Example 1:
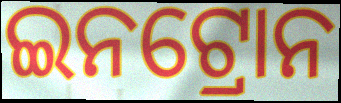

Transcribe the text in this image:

ଇନଟ୍ରୋନ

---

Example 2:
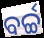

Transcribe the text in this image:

ବର୍ଚ୍ଚ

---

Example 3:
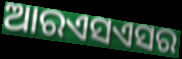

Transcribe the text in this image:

ଆରଏସଏସର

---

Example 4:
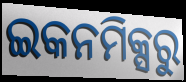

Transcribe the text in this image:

ଇକନମିକ୍ସରୁ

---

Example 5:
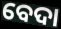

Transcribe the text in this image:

ବେଦା